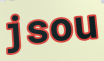
jsou